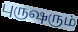
புருஷரும்